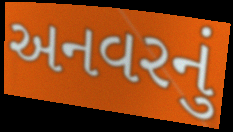
અનવરનું